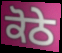
ਕੋਠੇ